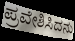
ಪ್ರವೇಶಿಸಿದನು